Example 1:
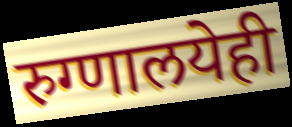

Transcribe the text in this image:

रुग्णालयेही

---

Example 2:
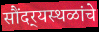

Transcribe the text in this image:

सौंदर्यस्थळांचे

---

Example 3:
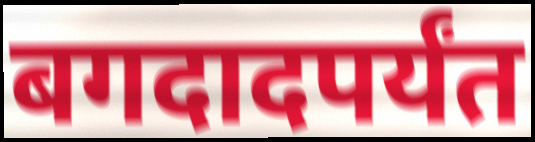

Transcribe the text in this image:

बगदादपर्यंत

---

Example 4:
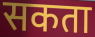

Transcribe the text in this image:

सकता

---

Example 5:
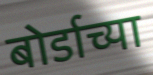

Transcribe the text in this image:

बोर्डाच्या